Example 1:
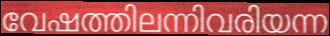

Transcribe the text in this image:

വേഷത്തിലന്നിവരിയന്ന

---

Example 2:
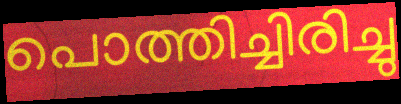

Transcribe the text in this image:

പൊത്തിച്ചിരിച്ചു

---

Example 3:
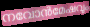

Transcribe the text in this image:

നവോൻമേഷവും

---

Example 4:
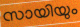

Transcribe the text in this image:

സായിയും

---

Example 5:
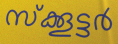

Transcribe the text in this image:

സ്ക്കൂട്ടർ